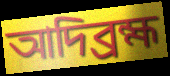
আদিব্রহ্ম